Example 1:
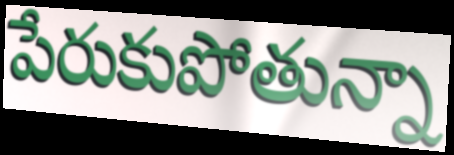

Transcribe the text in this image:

పేరుకుపోతున్నా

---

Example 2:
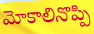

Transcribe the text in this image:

మోకాలినొప్పి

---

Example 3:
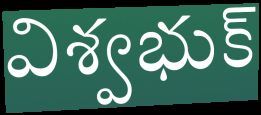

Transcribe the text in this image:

విశ్వభుక్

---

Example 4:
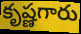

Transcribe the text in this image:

కృష్ణగారు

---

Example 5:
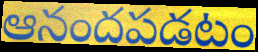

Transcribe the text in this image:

ఆనందపడటం